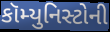
કૉમ્યુનિસ્ટોની